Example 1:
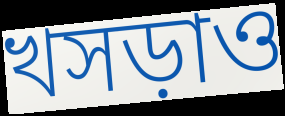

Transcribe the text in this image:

খসড়াও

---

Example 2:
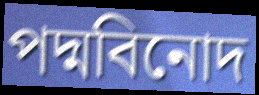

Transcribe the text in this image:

পদ্মবিনোদ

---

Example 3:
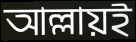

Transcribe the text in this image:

আল্লায়ই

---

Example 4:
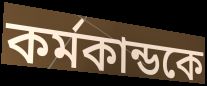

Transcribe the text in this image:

কর্মকান্ডকে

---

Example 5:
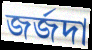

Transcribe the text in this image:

জর্জদা